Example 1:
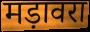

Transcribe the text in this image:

मड़ावरा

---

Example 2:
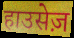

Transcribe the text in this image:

हाउसेज़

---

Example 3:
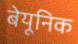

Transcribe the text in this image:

बेयूनिक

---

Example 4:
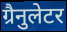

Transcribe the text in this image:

ग्रैनुलेटर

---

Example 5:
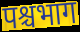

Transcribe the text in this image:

पश्चभाग